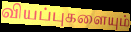
வியப்புகளையும்